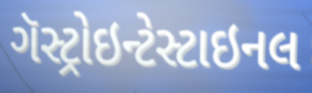
ગૅસ્ટ્રોઇન્ટેસ્ટાઇનલ